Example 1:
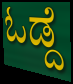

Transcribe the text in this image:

ಓಡ್ದೆ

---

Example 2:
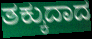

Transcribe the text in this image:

ತಕ್ಕುದಾದ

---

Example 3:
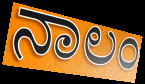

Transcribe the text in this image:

ನಾಲಂ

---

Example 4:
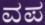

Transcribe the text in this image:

ವಪ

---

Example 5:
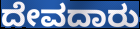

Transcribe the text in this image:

ದೇವದಾರು